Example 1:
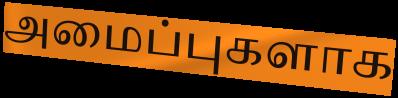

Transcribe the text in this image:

அமைப்புகளாக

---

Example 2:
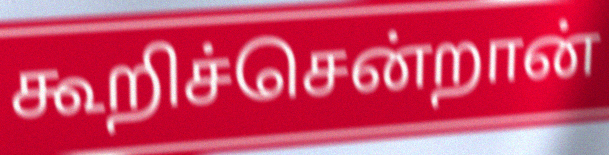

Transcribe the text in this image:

கூறிச்சென்றான்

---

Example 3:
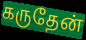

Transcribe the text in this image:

கருதேன்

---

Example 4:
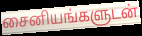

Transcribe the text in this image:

சைனியங்களுடன்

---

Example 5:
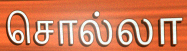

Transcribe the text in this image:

சொல்லா